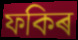
ফকিৰ